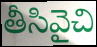
తీసివైచి